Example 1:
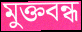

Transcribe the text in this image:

মুক্তবন্ধ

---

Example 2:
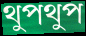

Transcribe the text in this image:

থুপথুপ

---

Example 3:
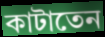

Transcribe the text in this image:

কাটাতেন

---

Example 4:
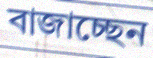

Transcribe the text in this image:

বাজাচ্ছেন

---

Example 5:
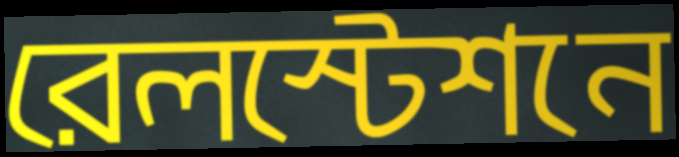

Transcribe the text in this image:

রেলস্টেশনে